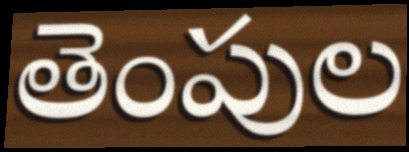
తెంపుల